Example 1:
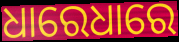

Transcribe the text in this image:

ଧାରେଧାରେ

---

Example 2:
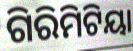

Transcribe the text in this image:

ଗିରିମିଟିୟା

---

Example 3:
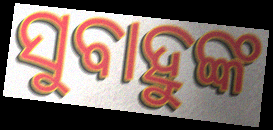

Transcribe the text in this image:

ସୁବାହୁଙ୍କ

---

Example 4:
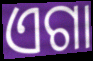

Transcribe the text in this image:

ଏଗା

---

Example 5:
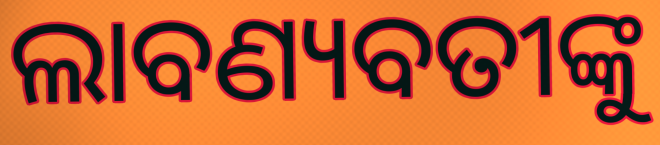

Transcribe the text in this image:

ଲାବଣ୍ୟବତୀଙ୍କୁ